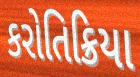
કરોતિક્રિયા